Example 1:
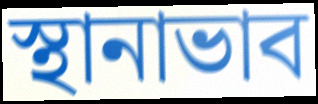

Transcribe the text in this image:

স্থানাভাব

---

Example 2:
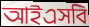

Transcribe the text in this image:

আইএসবি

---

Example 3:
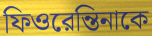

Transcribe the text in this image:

ফিওরেন্তিনাকে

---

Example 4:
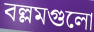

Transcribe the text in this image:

বল্লমগুলো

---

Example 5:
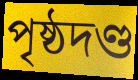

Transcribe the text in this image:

পৃষ্ঠদণ্ড